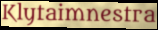
Klytaimnestra